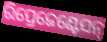
ରିପ୍ରେଜେଣ୍ଟେସନ୍